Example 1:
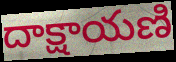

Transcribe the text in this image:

దాక్షాయణి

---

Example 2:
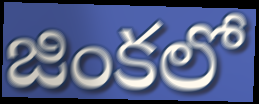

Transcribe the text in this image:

జింకలో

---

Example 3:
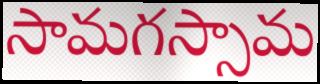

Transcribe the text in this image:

సామగస్సామ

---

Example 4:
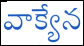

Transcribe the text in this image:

వాక్యేన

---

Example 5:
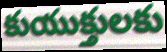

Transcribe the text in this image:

కుయుక్తులకు